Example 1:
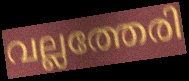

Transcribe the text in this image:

വല്ലത്തേരി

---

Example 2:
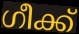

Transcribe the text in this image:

ഗീക്ക്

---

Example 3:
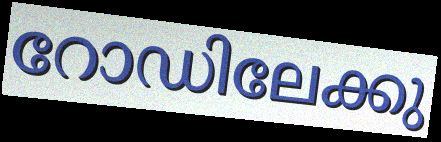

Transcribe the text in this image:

റോഡിലേക്കു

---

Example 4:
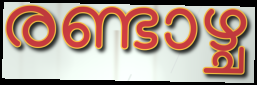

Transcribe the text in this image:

രണ്ടാഴ്ച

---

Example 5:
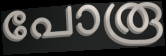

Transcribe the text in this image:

പോരൂ